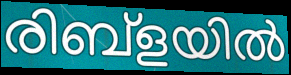
രിബ്ളയിൽ